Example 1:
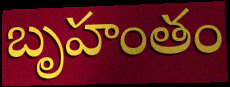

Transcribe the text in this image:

బృహంతం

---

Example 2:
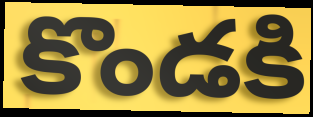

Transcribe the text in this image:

కొండకి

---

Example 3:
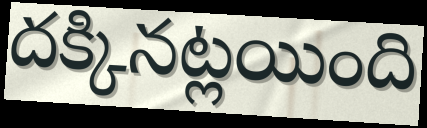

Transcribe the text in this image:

దక్కినట్లయింది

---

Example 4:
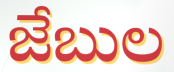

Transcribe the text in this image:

జేబుల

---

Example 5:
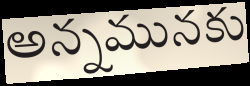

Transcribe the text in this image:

అన్నమునకు